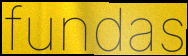
fundas